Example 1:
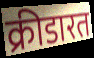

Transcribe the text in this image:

क्रीडारत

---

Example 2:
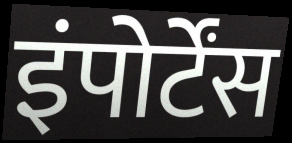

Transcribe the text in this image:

इंपोर्टेंस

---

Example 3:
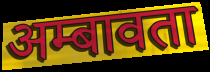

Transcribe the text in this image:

अम्बावता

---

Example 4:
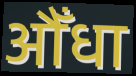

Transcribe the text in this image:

औँधा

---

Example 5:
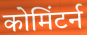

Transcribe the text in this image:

कोमिंटर्न